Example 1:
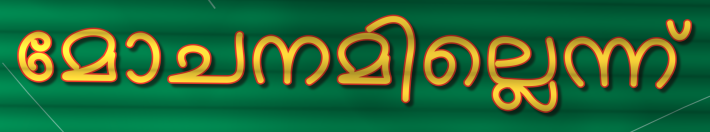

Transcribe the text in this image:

മോചനമില്ലെന്ന്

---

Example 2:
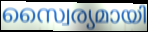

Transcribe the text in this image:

സ്വൈര്യമായി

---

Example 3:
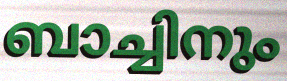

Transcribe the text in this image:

ബാച്ചിനും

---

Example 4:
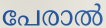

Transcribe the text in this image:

പേരാൽ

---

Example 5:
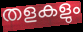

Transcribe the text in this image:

തളകളും